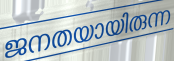
ജനതയായിരുന്ന